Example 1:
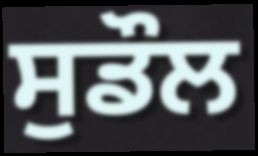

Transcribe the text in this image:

ਸੁਡੌਲ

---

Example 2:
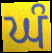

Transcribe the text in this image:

ਘੰ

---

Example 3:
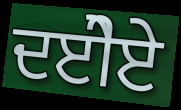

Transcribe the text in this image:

ਦਈੇਏ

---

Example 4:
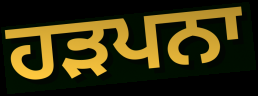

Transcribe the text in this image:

ਹੜਪਨਾ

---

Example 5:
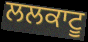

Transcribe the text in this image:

ਲਲਕਾਟੂ